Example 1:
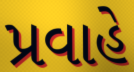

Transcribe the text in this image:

પ્રવાહે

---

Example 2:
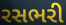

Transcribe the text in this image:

રસભરી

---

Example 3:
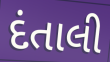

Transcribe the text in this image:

દંતાલી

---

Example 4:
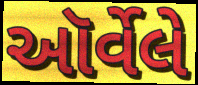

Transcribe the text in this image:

ઑર્વેલે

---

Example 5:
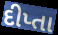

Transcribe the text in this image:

દીપ્તા